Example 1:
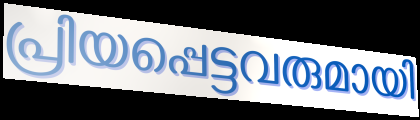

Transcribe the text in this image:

പ്രിയപ്പെട്ടവരുമായി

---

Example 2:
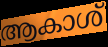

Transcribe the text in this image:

ആകാശ്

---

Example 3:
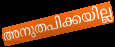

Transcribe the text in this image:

അനുതപിക്കയില്ല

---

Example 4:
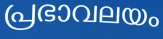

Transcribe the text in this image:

പ്രഭാവലയം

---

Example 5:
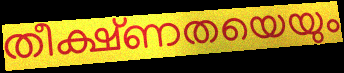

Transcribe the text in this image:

തീക്ഷ്ണതയെയും